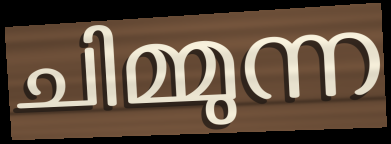
ചിമ്മുന്ന